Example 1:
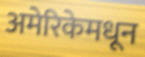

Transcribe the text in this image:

अमेरिकेमधून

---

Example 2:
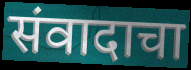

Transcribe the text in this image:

संवादाचा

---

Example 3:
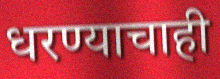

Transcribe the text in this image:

धरण्याचाही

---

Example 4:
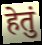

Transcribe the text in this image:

हेतुं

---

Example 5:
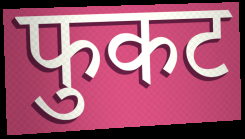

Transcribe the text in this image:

फुकट